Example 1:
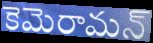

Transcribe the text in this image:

కెమెరామన్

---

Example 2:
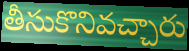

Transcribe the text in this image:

తీసుకొనివచ్చారు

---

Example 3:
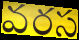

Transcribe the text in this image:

వరస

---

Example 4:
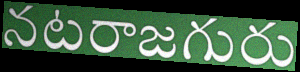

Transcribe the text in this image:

నటరాజగురు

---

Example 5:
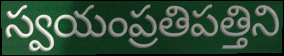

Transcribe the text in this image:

స్వయంప్రతిపత్తిని